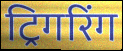
ट्रिगरिंग